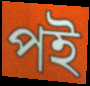
পই